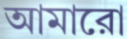
আমারো